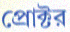
প্রোক্টর